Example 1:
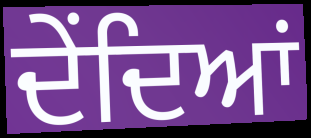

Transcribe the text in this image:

ਦੇਂਦਿਆਂ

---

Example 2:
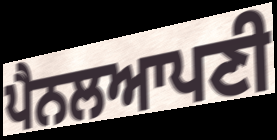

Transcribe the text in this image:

ਪੈਨਲਆਪਣੀ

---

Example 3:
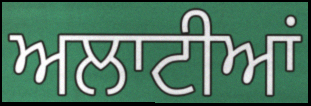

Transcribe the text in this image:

ਅਲਾਟੀਆਂ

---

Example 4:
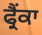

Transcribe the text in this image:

ਫ੍ਰੈਂਕਾ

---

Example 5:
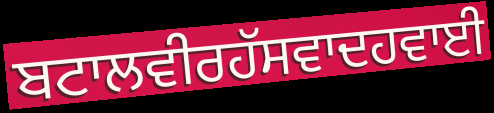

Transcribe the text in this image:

ਬਟਾਲਵੀਰਹੱਸਵਾਦਹਵਾਈ